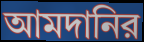
আমদানির